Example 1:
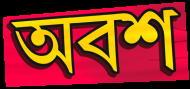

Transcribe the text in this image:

অবশ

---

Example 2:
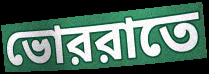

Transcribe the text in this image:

ভোররাতে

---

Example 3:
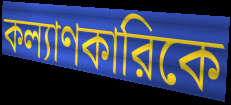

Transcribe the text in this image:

কল্যাণকারিকে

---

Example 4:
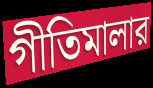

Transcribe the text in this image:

গীতিমালার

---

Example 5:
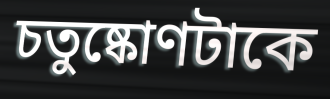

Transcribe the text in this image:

চতুষ্কোণটাকে